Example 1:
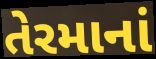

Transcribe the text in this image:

તેરમાનાં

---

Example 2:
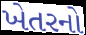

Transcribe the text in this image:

ખેતરનો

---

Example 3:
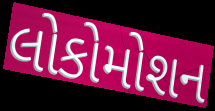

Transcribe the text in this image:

લોકોમોશન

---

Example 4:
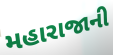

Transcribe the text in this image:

મહારાજાની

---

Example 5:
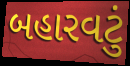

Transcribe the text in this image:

બહારવટું